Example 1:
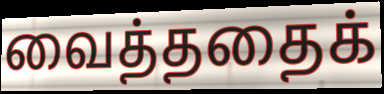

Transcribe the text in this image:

வைத்ததைக்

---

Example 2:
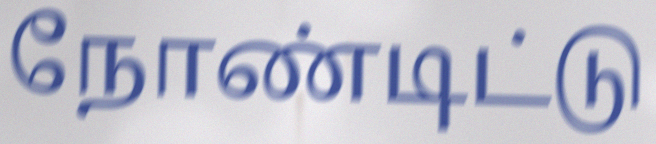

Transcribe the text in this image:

நோண்டிட்டு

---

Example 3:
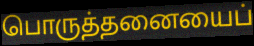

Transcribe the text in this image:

பொருத்தனையைப்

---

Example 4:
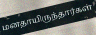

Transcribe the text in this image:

மனதாயிருந்தார்கள்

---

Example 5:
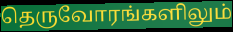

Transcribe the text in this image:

தெருவோரங்களிலும்